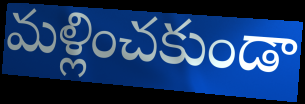
మళ్లించకుండా